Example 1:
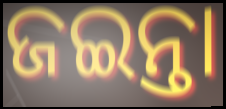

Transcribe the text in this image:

ଜଇନ୍ତା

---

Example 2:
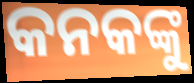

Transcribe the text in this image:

କନକଙ୍କୁ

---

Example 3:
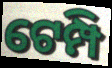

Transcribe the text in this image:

ଟେମ୍ପି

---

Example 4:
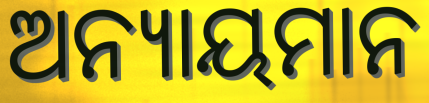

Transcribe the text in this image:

ଅନ୍ୟାୟମାନ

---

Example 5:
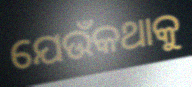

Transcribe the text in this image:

ଯେଉଁକଥାକୁ